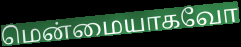
மென்மையாகவோ